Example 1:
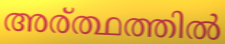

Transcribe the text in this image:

അര്ത്ഥത്തിൽ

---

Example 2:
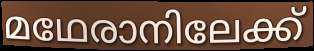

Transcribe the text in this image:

മഥേരാനിലേക്ക്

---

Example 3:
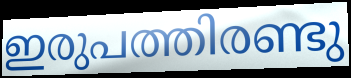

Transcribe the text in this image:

ഇരുപത്തിരണ്ടു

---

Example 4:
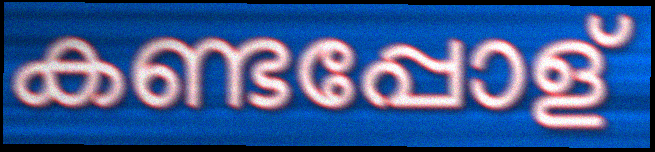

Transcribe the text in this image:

കണ്ടപ്പോള്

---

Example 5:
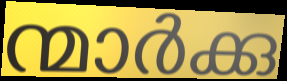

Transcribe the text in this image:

ന്മാർക്കു